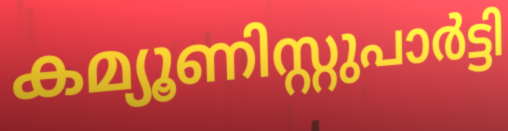
കമ്യൂണിസ്റ്റുപാർട്ടി